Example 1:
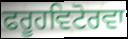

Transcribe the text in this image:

ਫਰੂਹਵਿਟੋਰਵਾ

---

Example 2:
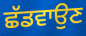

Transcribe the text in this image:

ਛੱਡਵਾਉਣ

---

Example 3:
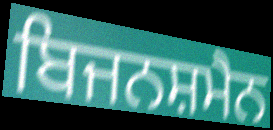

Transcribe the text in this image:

ਬਿਜਨਸ਼ਮੈਨ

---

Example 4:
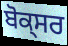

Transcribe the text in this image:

ਬੋਕ੍ਸਰ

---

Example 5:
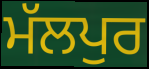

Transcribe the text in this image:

ਮੱਲਪੁਰ